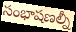
సంభాషణల్నీ